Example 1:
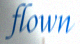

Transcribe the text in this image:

flown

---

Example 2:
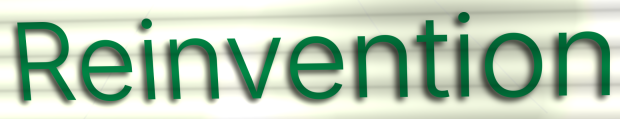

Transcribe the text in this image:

Reinvention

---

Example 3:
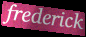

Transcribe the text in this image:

frederick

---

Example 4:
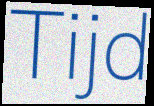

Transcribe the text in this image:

Tijd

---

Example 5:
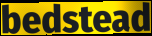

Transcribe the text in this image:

bedstead